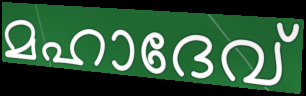
മഹാദേവ്